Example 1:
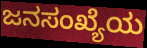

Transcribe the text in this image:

ಜನಸಂಖ್ಯೆಯ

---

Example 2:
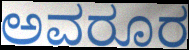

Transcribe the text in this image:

ಅವರೂರ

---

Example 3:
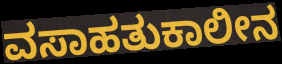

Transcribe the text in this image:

ವಸಾಹತುಕಾಲೀನ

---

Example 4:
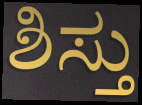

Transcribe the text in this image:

ಶಿಸ್ತು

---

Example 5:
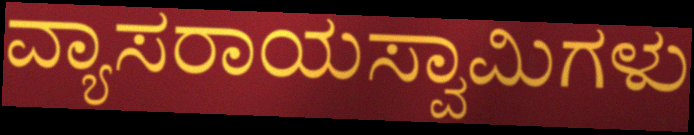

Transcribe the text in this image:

ವ್ಯಾಸರಾಯಸ್ವಾಮಿಗಳು